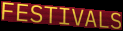
FESTIVALS